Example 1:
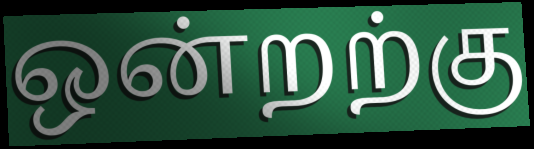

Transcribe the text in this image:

ஒன்றற்கு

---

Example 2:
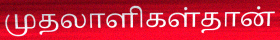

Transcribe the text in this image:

முதலாளிகள்தான்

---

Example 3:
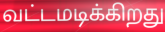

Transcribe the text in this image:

வட்டமடிக்கிறது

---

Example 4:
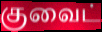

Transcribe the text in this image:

குவைட்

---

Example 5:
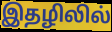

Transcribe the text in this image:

இதழிலில்